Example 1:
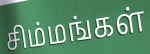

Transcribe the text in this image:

சிம்மங்கள்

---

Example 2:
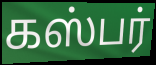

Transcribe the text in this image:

கஸ்பர்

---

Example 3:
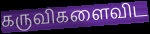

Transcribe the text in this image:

கருவிகளைவிட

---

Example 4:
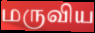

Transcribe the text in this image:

மருவிய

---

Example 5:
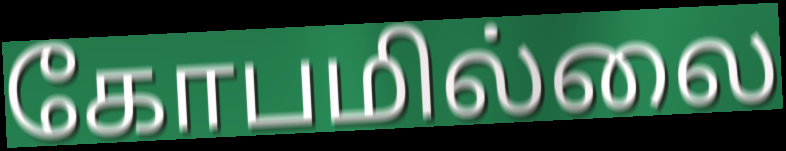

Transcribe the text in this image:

கோபமில்லை